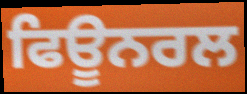
ਫਿਊਨਰਲ